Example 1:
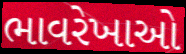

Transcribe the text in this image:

ભાવરેખાઓ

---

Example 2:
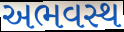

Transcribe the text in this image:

અભવસ્થ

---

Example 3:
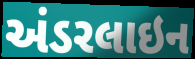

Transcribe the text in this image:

અંડરલાઇન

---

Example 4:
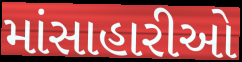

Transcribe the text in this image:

માંસાહારીઓ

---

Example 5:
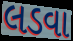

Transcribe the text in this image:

લડવા